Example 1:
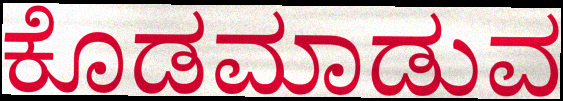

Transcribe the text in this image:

ಕೊಡಮಾಡುವ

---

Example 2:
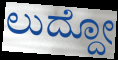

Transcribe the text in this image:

ಲುದ್ದೋ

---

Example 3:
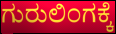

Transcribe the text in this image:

ಗುರುಲಿಂಗಕ್ಕೆ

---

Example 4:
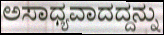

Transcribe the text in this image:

ಅಸಾಧ್ಯವಾದದ್ದನ್ನು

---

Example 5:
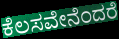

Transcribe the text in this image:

ಕೆಲಸವೇನೆಂದರೆ